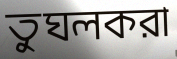
তুঘলকরা